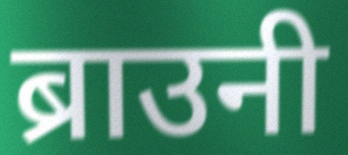
ब्राउनी